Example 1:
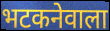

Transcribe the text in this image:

भटकनेवाला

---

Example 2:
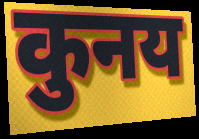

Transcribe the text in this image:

कुनय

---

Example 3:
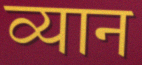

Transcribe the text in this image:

व्यान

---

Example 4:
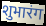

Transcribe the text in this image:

शुभारंग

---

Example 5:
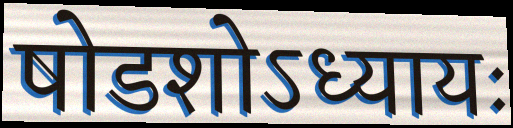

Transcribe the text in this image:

षोडशोऽध्यायः